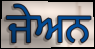
ਜੇਅਨ